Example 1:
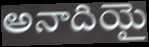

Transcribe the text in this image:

అనాదియై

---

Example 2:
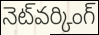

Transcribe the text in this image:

నెట్‌వర్కింగ్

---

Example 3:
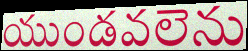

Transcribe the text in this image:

యుండవలెను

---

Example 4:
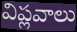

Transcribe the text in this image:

విప్లవాలు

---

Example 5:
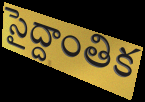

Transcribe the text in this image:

సైద్దాంతిక